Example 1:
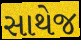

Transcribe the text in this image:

સાથેજ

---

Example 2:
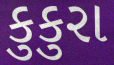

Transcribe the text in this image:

કુકુરા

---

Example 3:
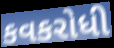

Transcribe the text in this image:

કવકરોધી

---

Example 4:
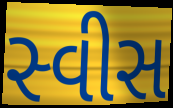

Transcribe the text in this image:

સ્વીસ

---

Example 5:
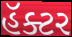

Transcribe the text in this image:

હૅક્ટર